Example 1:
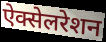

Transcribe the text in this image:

ऐक्सेलरेशन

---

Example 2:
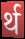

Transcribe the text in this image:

र्थ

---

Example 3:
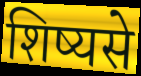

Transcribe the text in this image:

शिष्यसे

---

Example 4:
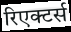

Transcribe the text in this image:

रिएक्टर्स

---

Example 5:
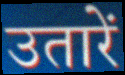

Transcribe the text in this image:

उतारें